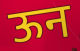
ऊन